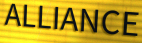
ALLIANCE